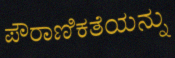
ಪೌರಾಣಿಕತೆಯನ್ನು